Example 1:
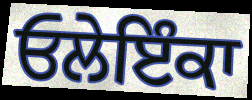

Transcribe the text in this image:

ਓਲੇਇੰਕਾ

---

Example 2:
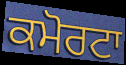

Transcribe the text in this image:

ਕਮੋਰਟਾ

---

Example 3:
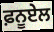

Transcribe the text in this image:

ਫ਼ਨੂਏਲ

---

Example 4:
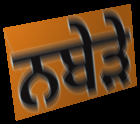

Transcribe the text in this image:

ਨਬੇੜੇ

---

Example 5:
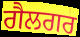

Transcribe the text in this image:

ਗੈਲਗਰ